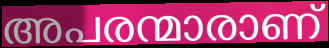
അപരന്മാരാണ്